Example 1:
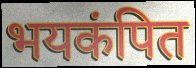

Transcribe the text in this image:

भयकंपित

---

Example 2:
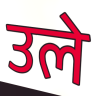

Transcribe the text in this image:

उले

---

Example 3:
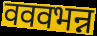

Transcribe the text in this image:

वववभन्न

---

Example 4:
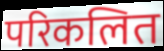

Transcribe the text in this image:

परिकलित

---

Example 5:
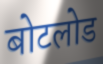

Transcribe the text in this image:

बोटलोड